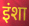
इंशा